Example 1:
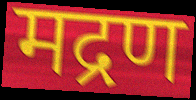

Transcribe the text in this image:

मद्रण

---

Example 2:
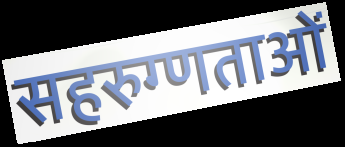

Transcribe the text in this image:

सहरुग्णताओं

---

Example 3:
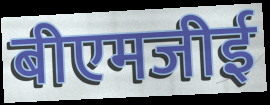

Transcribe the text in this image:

बीएमजीई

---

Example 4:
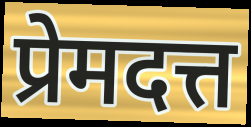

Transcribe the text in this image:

प्रेमदत्त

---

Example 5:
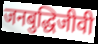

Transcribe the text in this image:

जनबुद्धिजीवी